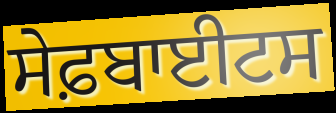
ਸੇਫ਼ਬਾਈਟਸ